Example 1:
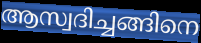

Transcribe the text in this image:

ആസ്വദിച്ചങ്ങിനെ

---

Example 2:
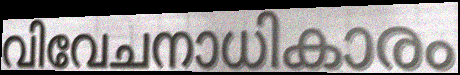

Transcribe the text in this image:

വിവേചനാധികാരം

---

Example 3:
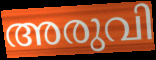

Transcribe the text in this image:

അരുവി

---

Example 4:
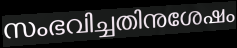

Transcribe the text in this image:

സംഭവിച്ചതിനുശേഷം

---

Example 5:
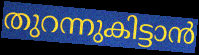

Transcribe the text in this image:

തുറന്നുകിട്ടാൻ